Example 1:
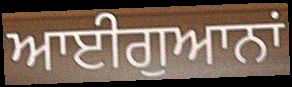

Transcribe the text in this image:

ਆਈਗੁਆਨਾਂ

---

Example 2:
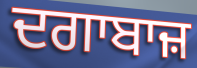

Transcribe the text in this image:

ਦਗਾਬਾਜ਼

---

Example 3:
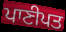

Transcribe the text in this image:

ਪਾਣੀਪਤ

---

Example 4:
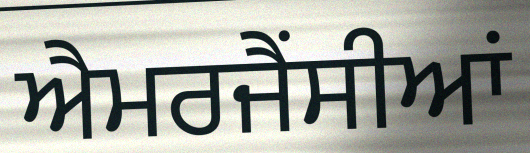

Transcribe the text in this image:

ਐਮਰਜੈਂਸੀਆਂ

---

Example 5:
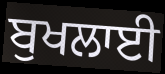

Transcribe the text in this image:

ਬੁਖਲਾਈ